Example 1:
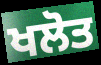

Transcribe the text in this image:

ਖਲੋਤ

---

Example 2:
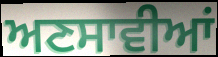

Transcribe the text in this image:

ਅਣਸਾਵੀਆਂ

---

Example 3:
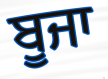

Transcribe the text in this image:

ਬੂਜਾ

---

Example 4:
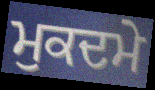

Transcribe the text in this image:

ਮੁਕਦਮੇ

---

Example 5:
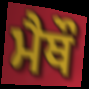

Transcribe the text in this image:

ਮੈਥੌ